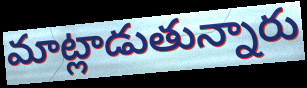
మాట్లాడుతున్నారు